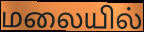
மலையில்